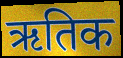
ऋतिक